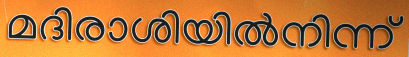
മദിരാശിയിൽനിന്ന്